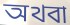
অথবা